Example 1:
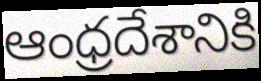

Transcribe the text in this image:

ఆంధ్రదేశానికి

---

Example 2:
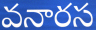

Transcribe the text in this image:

వనారస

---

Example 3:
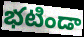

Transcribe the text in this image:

భటిండా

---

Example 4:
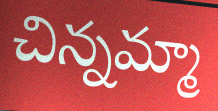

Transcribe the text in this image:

చిన్నమ్మా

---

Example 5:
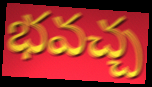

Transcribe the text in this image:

భవచ్చ